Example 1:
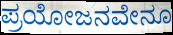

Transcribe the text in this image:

ಪ್ರಯೋಜನವೇನೂ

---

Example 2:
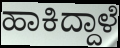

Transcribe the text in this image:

ಹಾಕಿದ್ದಾಳೆ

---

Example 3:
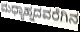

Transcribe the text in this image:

ಮಧ್ಯಾಹ್ನದವರೆಗಿನ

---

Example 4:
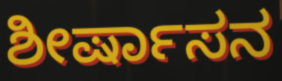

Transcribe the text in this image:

ಶೀರ್ಷಾಸನ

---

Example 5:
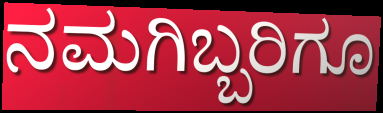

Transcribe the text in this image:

ನಮಗಿಬ್ಬರಿಗೂ